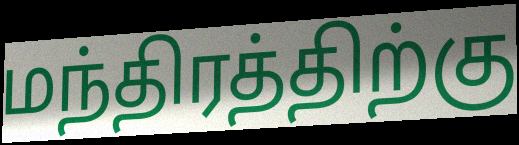
மந்திரத்திற்கு